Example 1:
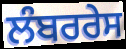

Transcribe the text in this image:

ਲੰਬਰਰੇਸ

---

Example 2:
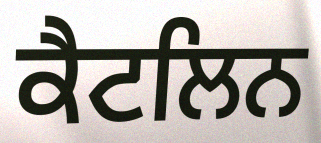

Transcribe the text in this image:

ਕੈਟਲਿਨ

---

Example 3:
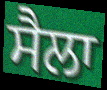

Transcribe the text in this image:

ਸੈਲਾ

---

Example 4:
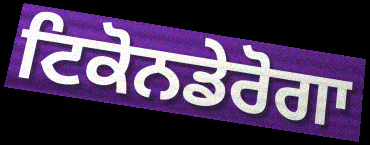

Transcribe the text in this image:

ਟਿਕੋਨਡੇਰੋਗਾ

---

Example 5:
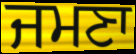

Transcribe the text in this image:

ਜਮਣਾ